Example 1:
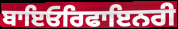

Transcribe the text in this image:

ਬਾਇਓਰਿਫਾਇਨਰੀ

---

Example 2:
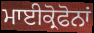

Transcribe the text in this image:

ਮਾਈਕ੍ਰੋਫੋਨਾਂ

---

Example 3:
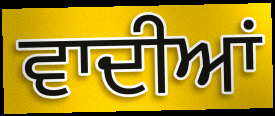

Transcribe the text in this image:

ਵਾਦੀਆਂ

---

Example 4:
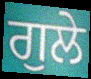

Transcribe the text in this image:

ਗੁਲੇ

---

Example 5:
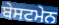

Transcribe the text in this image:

ਬੇਸਟਮੇਨ